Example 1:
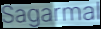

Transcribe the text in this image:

Sagarmal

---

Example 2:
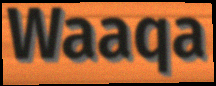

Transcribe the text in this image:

Waaqa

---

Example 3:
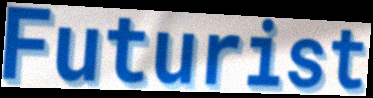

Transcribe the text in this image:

Futurist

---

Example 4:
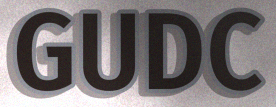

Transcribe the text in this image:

GUDC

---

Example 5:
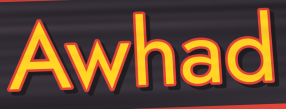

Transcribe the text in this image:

Awhad